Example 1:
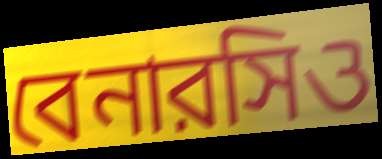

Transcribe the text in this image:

বেনারসিও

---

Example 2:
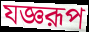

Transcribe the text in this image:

যজ্ঞরূপ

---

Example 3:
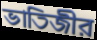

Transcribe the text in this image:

ভাতিজীর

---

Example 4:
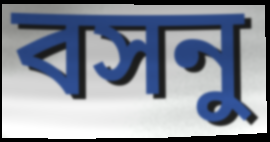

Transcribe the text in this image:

বসনু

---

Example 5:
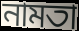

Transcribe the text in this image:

নামতা